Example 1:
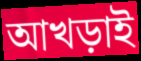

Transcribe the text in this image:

আখড়াই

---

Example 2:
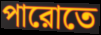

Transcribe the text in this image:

পারোতে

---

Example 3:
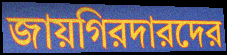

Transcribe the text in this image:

জায়গিরদারদের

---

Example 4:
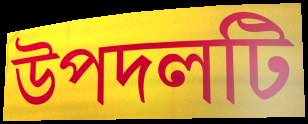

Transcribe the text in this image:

উপদলটি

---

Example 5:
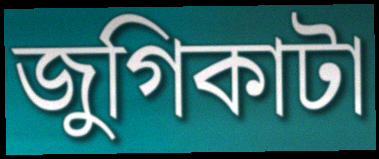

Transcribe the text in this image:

জুগিকাটা